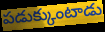
పడుక్కుంటాడు